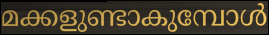
മക്കളുണ്ടാകുമ്പോൾ